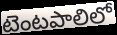
టెంటపాలిలో